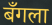
बँगला